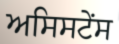
ਅਸਿਸਟੇਂਸ